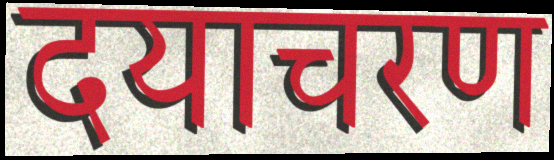
दयाचरण